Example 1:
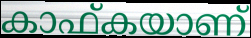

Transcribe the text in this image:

കാഫ്കയാണ്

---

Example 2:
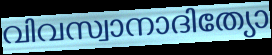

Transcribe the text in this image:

വിവസ്വാനാദിത്യോ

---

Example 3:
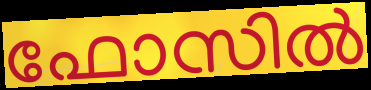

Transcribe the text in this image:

ഫോസിൽ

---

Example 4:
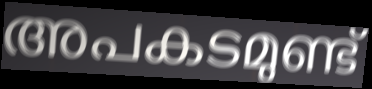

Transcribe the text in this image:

അപകടമുണ്ട്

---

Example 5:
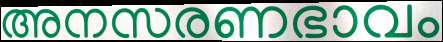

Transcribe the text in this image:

അനസരണഭാവം